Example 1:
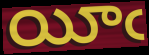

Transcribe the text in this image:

యీఁ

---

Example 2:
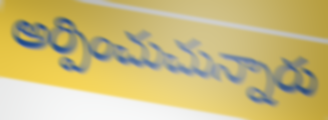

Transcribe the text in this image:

అర్పించుచున్నారు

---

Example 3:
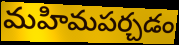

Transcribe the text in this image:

మహిమపర్చడం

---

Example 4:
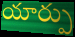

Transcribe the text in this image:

యార్పు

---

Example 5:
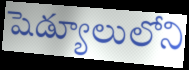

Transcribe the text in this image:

షెడ్యూలులోని